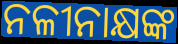
ନଳୀନାକ୍ଷଙ୍କ